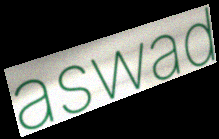
aswad